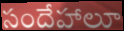
సందేహాలూ